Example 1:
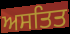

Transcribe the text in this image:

ਅਸਤਿਤ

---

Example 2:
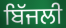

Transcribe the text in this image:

ਬਿੱਜਲੀ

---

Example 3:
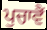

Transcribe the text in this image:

ਪੁਚਾਵੈਂ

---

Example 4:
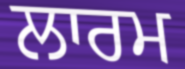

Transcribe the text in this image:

ਲਾਰਮ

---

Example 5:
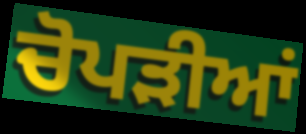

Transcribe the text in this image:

ਚੋਪੜੀਆਂ